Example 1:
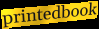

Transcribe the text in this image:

printedbook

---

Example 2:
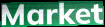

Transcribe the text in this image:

Market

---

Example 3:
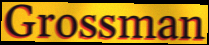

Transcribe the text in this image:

Grossman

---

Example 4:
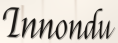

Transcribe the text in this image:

Innondu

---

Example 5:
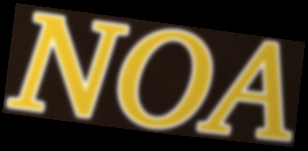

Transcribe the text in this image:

NOA